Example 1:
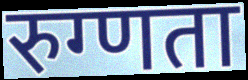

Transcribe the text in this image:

रुग्णता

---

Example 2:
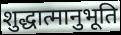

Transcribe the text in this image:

शुद्धात्मानुभूति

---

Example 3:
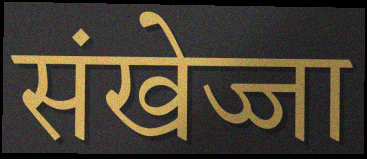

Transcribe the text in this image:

संखेज्जा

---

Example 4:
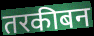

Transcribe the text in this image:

तरकीबन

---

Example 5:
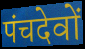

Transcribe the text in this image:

पंचदेवों